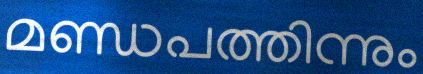
മണ്ഡപത്തിന്നും